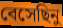
বেসেছিনু